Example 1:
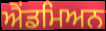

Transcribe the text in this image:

ਐਂਡਮਿਅਨ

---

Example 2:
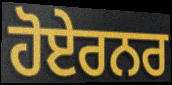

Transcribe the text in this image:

ਹੋਏਰਨਰ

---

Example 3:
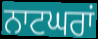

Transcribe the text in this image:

ਨਾਟਘਰਾਂ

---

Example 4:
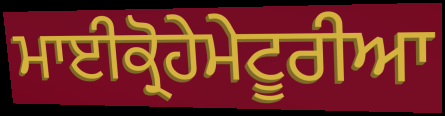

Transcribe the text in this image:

ਮਾਈਕ੍ਰੋਹੇਮੇਟੂਰੀਆ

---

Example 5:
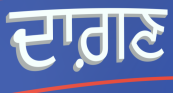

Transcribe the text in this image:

ਦਾਗ਼ਣ